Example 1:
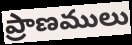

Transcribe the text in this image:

ప్రాణములు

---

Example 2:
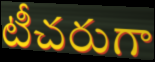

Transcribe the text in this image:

టీచరుగా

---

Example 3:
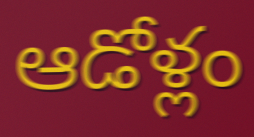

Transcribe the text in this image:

ఆడోళ్లం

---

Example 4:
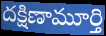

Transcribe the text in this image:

దక్షిణామూర్తి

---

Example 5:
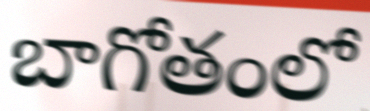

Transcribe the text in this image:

బాగోతంలో